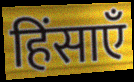
हिंसाएँ